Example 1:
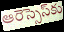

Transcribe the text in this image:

ఆరెస్సెస్‌కు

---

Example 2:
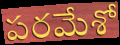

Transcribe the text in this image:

పరమేశో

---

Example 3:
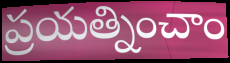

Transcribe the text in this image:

ప్రయత్నించాం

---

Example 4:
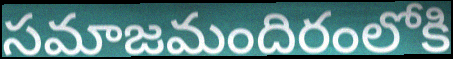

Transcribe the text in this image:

సమాజమందిరంలోకి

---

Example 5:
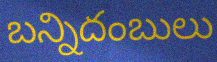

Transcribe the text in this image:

బన్నిదంబులు